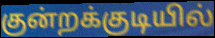
குன்றக்குடியில்